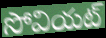
సోవియట్